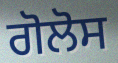
ਗੋਲੋਸ